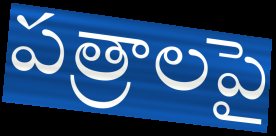
పత్రాలపై